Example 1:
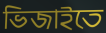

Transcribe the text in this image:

ভিজাইতে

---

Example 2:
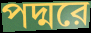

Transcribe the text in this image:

পদ্মরে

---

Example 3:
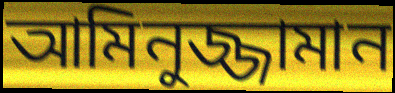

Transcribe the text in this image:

আমিনুজ্জামান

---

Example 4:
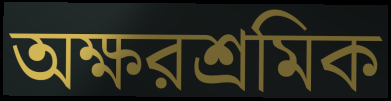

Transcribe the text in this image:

অক্ষরশ্রমিক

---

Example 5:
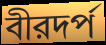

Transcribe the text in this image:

বীরদর্প